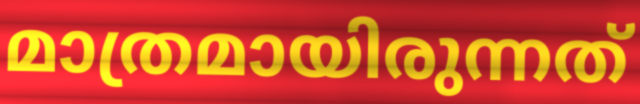
മാത്രമായിരുന്നത്